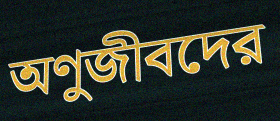
অণুজীবদের